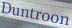
Duntroon